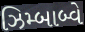
ઝિમ્બાબ્વે